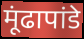
मूंढापांडे